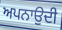
ਅਪਨਾਉਦੀ